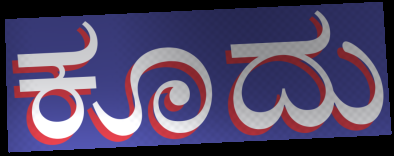
ಕೂದು